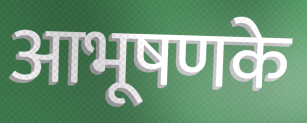
आभूषणके